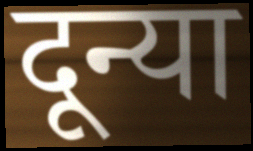
दून्या